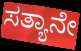
ಸತ್ಯಾನೇ